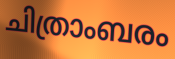
ചിത്രാംബരം